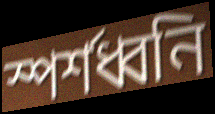
স্পৰ্শধ্বনি